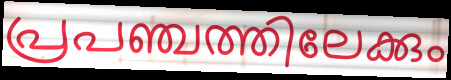
പ്രപഞ്ചത്തിലേക്കും